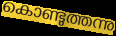
കൊണ്ടുത്തന്നു